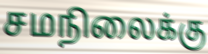
சமநிலைக்கு